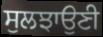
ਸੁਲਝਾਉਣੀ